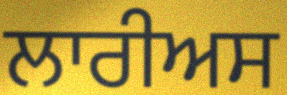
ਲਾਰੀਅਸ